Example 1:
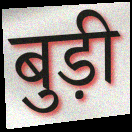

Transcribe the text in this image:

बुड़ी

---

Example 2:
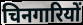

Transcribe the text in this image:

चिनगारियों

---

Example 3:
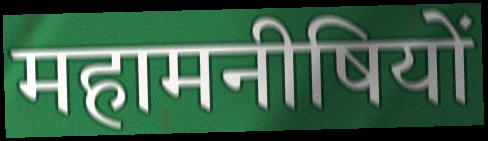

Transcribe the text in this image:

महामनीषियों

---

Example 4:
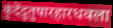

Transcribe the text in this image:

कुंदेंदुतुषारहारधवला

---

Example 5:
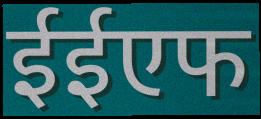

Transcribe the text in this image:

ईईएफ